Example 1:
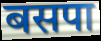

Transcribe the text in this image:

बसपा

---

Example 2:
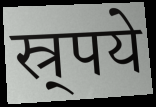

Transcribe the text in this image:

स्र्पये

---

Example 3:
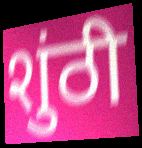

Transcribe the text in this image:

शुंठी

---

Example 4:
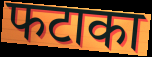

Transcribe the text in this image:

फटाका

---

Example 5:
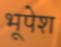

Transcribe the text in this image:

भूपेश